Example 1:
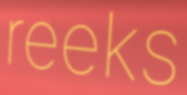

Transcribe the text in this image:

reeks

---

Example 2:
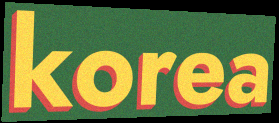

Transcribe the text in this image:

korea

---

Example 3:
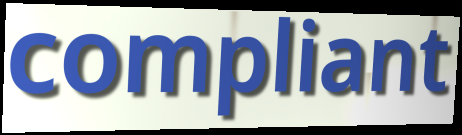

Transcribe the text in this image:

compliant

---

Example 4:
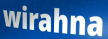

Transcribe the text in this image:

wirahna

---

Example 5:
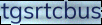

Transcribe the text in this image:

tgsrtcbus